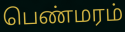
பெண்மரம்